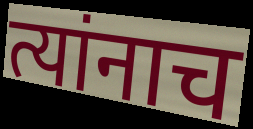
त्यांनाच